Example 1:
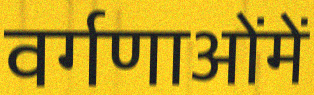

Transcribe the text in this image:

वर्गणाओंमें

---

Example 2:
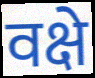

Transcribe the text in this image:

वक्षे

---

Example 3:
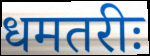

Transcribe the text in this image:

धमतरीः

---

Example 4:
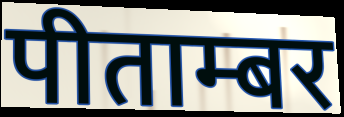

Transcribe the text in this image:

पीताम्बर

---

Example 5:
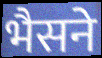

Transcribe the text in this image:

भैसने